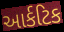
આર્કટિક